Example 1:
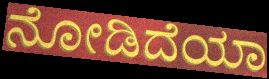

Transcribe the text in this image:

ನೋಡಿದೆಯಾ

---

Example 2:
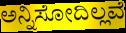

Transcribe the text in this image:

ಅನ್ನಿಸೋದಿಲ್ಲವೆ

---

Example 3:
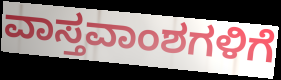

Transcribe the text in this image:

ವಾಸ್ತವಾಂಶಗಳಿಗೆ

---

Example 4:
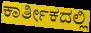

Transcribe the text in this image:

ಕಾರ್ತೀಕದಲ್ಲಿ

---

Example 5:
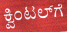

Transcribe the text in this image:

ಕ್ವಿಂಟಲ್‌ಗೆ